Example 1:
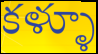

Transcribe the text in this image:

కళ్ళూ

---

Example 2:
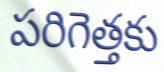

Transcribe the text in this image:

పరిగెత్తకు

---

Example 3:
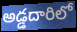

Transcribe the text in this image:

అడ్డదారిలో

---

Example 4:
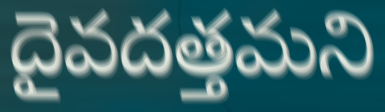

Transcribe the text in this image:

దైవదత్తమని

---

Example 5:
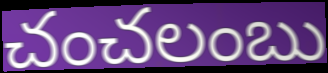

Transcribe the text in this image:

చంచలంబు